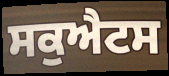
ਸਕੁਐਟਸ